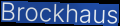
Brockhaus